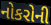
નોકરોની